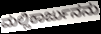
ಮಲ್ಲಿಕಾರ್ಜುನನು